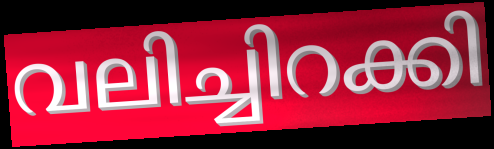
വലിച്ചിറക്കി